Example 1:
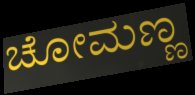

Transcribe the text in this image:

ಚೋಮಣ್ಣ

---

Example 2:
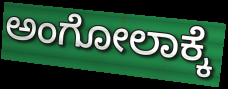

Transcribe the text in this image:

ಅಂಗೋಲಾಕ್ಕೆ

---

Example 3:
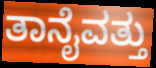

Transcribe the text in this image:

ತಾನೈವತ್ತು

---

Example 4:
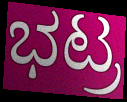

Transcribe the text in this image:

ಭಟ್ರ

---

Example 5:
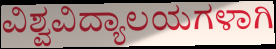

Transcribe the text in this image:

ವಿಶ್ವವಿದ್ಯಾಲಯಗಳಾಗಿ